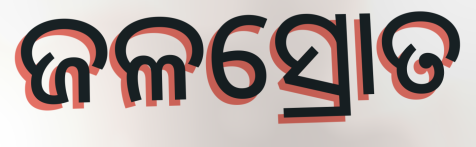
ଜଳସ୍ରୋତ